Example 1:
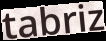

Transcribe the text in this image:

tabriz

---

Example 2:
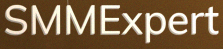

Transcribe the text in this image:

SMMExpert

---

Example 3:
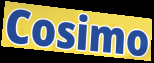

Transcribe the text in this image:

Cosimo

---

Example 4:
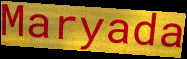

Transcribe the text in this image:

Maryada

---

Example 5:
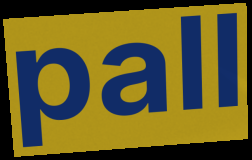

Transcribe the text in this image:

pall